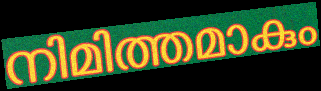
നിമിത്തമാകും